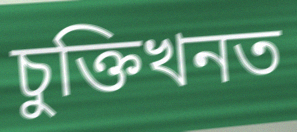
চুক্তিখনত